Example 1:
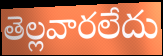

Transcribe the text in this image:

తెల్లవారలేదు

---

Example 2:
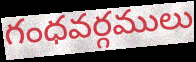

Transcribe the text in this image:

గంధవర్గములు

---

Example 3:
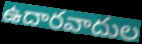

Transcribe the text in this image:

ఉదారవాదుల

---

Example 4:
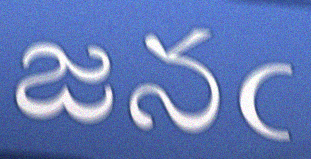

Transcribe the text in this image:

జనఁ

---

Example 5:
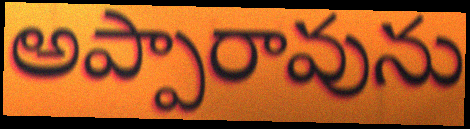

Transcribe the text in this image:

అప్పారావును